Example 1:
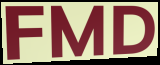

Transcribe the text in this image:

FMD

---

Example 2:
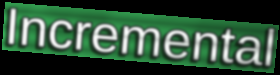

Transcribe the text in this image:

Incremental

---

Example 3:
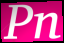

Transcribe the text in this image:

Pn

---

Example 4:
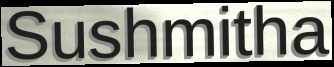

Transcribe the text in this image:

Sushmitha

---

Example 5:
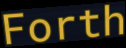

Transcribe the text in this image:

Forth